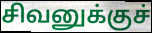
சிவனுக்குச்